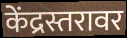
केंद्रस्तरावर